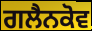
ਗਲੈਨਕੋਵ